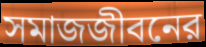
সমাজজীবনের